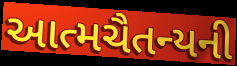
આત્મચૈતન્યની